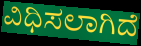
ವಿಧಿಸಲಾಗಿದೆ